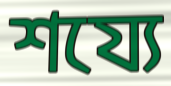
শয্যে